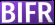
BIFR